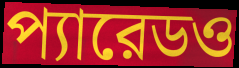
প্যারেডও